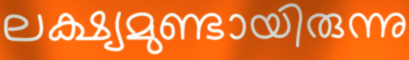
ലക്ഷ്യമുണ്ടായിരുന്നു